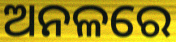
ଅନଳରେ